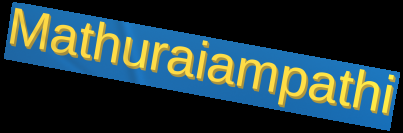
Mathuraiampathi